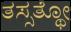
ತಸ್ಸತ್ಥೋ